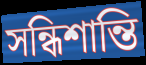
সন্ধিশান্তি